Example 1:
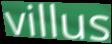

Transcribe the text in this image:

villus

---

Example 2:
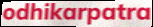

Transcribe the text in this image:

odhikarpatra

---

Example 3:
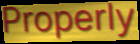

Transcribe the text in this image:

Properly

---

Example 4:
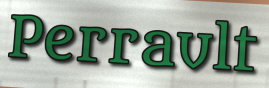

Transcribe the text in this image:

Perrault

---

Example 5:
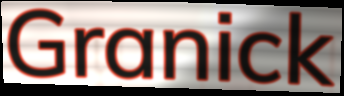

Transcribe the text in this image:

Granick